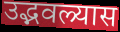
उद्भवल्यास